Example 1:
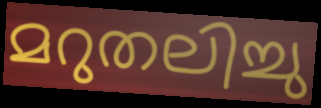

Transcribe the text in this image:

മറുതലിച്ചു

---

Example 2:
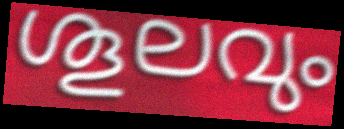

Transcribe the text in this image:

ശൂലവും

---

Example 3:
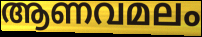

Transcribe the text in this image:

ആണവമലം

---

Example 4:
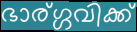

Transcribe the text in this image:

ഭാര്ഗ്ഗവിക്ക്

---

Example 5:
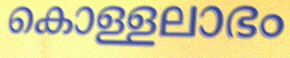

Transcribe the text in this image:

കൊള്ളലാഭം